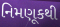
નિમણૂકથી